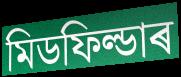
মিডফিল্ডাৰ